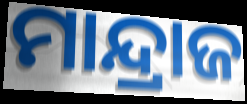
ମାନ୍ଦ୍ରାଜ